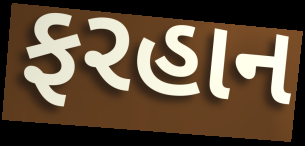
ફરહાન